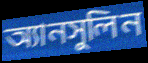
অ্যানসুলিন